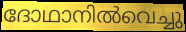
ദോഥാനിൽവെച്ചു